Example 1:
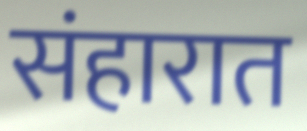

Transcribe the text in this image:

संहारात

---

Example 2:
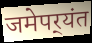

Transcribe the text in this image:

जमेपर्यंत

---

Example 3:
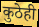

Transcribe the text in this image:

कुठेही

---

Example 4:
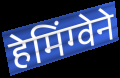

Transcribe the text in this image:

हेमिंग्वेने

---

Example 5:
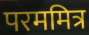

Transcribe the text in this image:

परममित्र